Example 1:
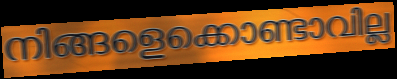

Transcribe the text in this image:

നിങ്ങളെക്കൊണ്ടാവില്ല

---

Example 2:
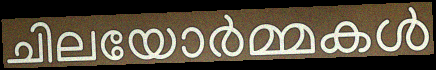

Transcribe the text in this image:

ചിലയോർമ്മകൾ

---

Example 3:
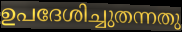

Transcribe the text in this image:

ഉപദേശിച്ചുതന്നതു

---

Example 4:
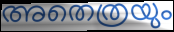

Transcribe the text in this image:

അതെത്രയും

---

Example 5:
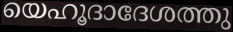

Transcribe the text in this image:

യെഹൂദാദേശത്തു